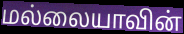
மல்லையாவின்